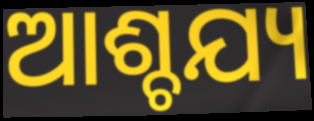
ଆଶ୍ଚଯ୍ୟ